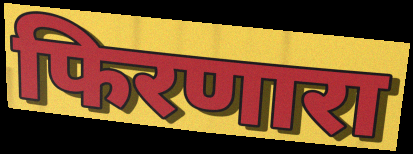
फिरणारा